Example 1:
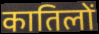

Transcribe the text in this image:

कातिलों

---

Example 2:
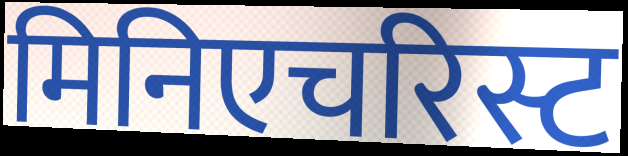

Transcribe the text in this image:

मिनिएचरिस्ट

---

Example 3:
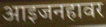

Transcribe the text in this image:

आइजनहावर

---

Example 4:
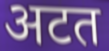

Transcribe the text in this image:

अटत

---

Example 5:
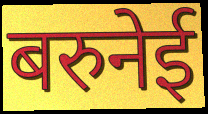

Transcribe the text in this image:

बरुनेई